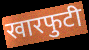
खारफुटी